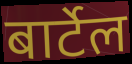
बार्टेल